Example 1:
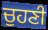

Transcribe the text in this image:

ਚੁਹਣੀ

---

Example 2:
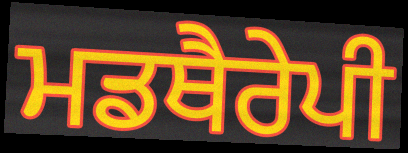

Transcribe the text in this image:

ਮਡਥੈਰੇਪੀ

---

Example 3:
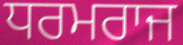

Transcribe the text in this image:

ਧਰਮਰਾਜ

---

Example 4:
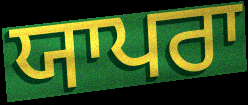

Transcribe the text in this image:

ਯਾਪਰਾ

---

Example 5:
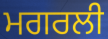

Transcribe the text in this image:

ਮਗਰਲੀ